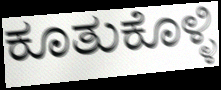
ಕೂತುಕೊಳ್ಳಿ